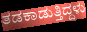
ತಡಕಾಡುತ್ತಿದ್ದಳು